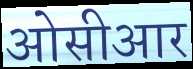
ओसीआर